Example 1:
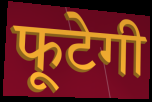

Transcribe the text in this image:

फूटेगी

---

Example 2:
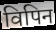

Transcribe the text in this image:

विपिन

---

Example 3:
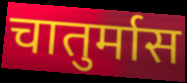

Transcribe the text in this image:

चातुर्मास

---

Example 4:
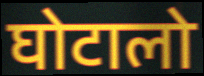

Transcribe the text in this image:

घोटालो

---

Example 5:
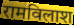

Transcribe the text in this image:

रामविलाश